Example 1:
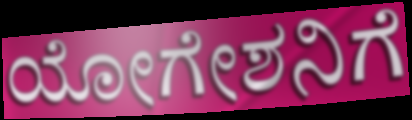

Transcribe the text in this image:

ಯೋಗೇಶನಿಗೆ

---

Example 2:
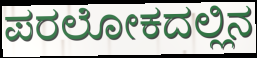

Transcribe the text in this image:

ಪರಲೋಕದಲ್ಲಿನ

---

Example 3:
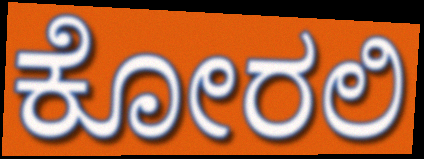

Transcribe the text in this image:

ಕೋರಲಿ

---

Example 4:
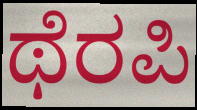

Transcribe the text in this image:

ಥೆರಪಿ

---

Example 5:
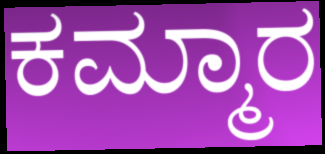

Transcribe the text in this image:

ಕಮ್ಮಾರ